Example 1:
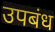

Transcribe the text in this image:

उपबंध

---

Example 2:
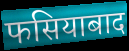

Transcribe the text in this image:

फसियाबाद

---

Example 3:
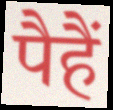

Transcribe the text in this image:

पैहैं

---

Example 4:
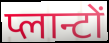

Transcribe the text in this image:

प्लान्टों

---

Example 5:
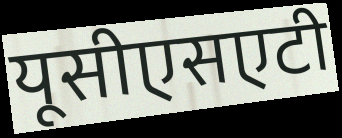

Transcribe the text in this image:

यूसीएसएटी